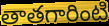
తాతగారింటి